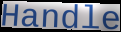
Handle